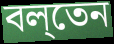
বল্‌তেন